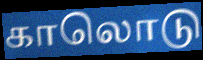
காலொடு